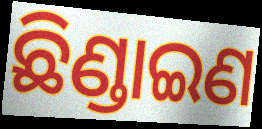
ଛିଣ୍ଡାଇଣ